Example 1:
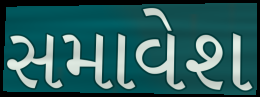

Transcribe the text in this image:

સમાવેશ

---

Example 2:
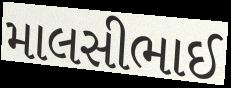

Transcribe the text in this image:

માલસીભાઈ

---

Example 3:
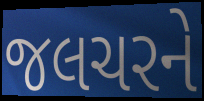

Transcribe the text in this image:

જલચરને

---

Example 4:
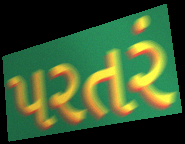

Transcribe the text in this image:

પરતરં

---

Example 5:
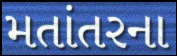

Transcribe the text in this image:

મતાંતરના